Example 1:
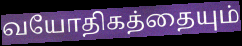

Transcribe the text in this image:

வயோதிகத்தையும்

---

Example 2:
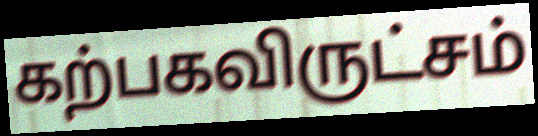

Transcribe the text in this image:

கற்பகவிருட்சம்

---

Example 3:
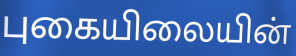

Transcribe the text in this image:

புகையிலையின்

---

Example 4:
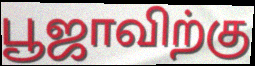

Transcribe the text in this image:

பூஜாவிற்கு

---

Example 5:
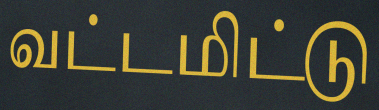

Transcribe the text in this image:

வட்டமிட்டு